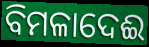
ବିମଳାଦେଈ